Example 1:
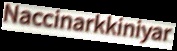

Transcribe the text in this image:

Naccinarkkiniyar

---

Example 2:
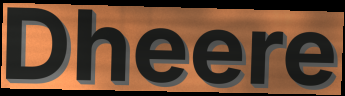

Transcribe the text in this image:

Dheere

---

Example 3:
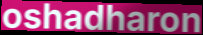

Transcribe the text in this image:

oshadharon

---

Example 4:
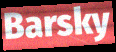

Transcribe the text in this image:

Barsky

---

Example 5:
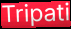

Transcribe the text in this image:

Tripati